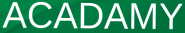
ACADAMY